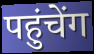
पहुंचेंग